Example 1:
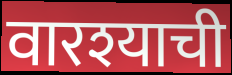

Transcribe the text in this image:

वारश्याची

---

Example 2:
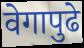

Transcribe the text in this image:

वेगापुढे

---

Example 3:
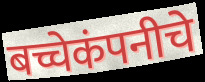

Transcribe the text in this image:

बच्चेकंपनीचे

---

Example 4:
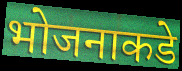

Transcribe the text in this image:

भोजनाकडे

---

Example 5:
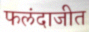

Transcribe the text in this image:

फलंदाजीत